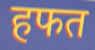
हफत